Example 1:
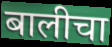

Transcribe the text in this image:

बालीचा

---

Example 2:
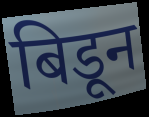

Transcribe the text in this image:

बिडून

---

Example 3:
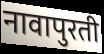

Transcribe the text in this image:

नावापुरती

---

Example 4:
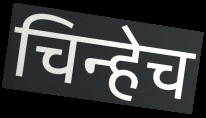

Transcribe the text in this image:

चिन्हेच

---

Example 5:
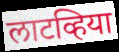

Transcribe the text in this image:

लाटव्हिया